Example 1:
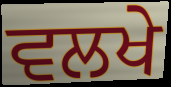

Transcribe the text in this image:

ਵਲਖੇ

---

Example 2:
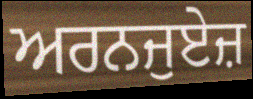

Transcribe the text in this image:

ਅਰਨਜੁਏਜ਼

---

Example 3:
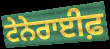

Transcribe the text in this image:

ਟੇਨੇਰਾਈਫ਼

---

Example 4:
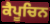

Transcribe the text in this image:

ਕੈਪੂਚਿਨ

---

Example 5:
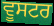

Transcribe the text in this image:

ਵੂਸਟਰ